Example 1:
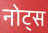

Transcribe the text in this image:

नोट्स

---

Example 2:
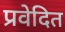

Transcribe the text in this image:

प्रवेदित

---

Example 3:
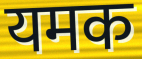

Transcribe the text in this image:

यमक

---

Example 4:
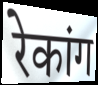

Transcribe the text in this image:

रेकांग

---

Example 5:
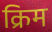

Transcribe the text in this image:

क्रिम